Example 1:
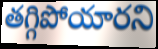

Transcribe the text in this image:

తగ్గిపోయారని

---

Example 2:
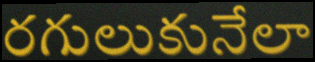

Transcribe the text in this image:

రగులుకునేలా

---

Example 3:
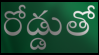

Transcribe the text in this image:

రోడ్డుతో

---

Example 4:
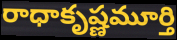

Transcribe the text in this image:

రాధాకృష్ణమూర్తి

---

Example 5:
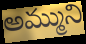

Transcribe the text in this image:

అమ్ముని